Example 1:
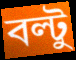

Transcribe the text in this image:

বল্টু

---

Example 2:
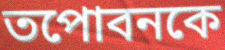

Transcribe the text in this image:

তপোবনকে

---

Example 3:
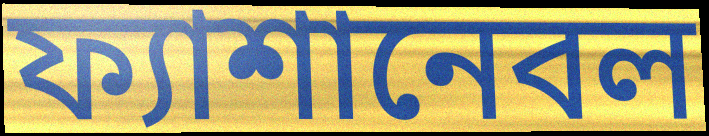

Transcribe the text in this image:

ফ্যাশানেবল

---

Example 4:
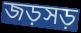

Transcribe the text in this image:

জড়সড়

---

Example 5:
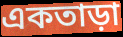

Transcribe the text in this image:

একতাড়া